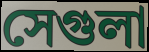
সেগুলা